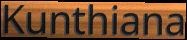
Kunthiana